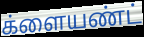
க்ளையண்ட்